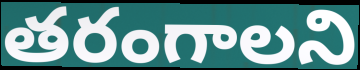
తరంగాలని